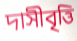
দাসীবৃত্তি